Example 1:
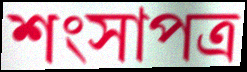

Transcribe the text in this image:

শংসাপত্র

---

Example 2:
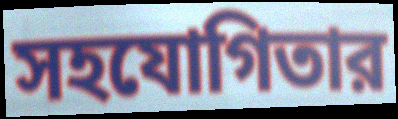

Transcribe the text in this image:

সহযোগিতার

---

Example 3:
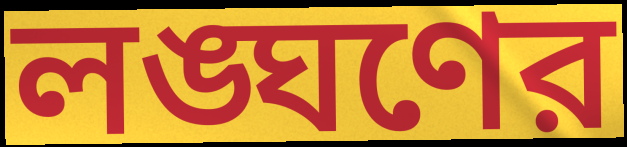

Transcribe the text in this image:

লঙ্ঘণের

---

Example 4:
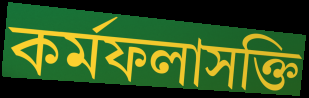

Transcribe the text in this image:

কর্মফলাসক্তি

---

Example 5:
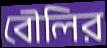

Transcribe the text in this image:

বৌলির